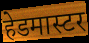
हेडमास्टर